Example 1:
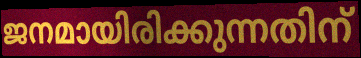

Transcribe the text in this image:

ജനമായിരിക്കുന്നതിന്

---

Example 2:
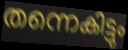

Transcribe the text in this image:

തന്നെകിട്ടും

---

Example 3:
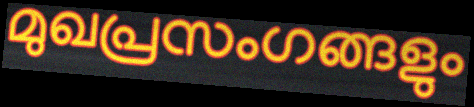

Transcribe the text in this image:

മുഖപ്രസംഗങ്ങളും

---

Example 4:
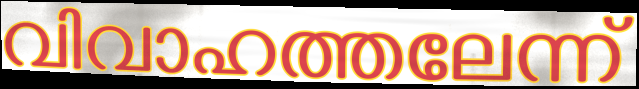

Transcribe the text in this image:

വിവാഹത്തലേന്ന്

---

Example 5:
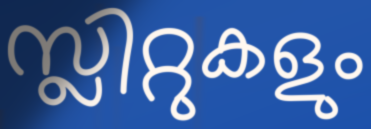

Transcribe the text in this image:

സ്ലിറ്റുകളും